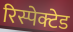
रिस्पेक्टेड